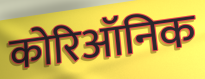
कोरिऑनिक